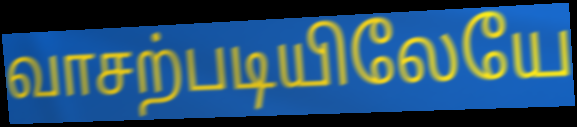
வாசற்படியிலேயே